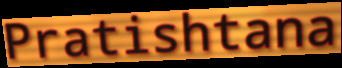
Pratishtana